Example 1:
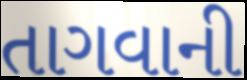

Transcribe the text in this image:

તાગવાની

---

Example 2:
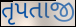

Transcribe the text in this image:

તૃપતાજી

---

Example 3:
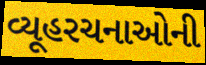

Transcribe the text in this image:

વ્યૂહરચનાઓની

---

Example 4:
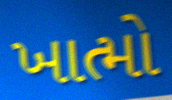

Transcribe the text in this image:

ખાત્મો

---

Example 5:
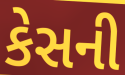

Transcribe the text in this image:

કેસની